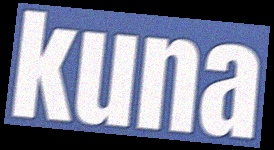
kuna